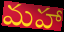
మహా